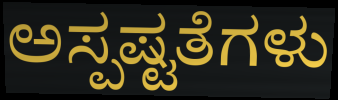
ಅಸ್ಪಷ್ಟತೆಗಳು